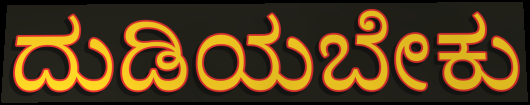
ದುಡಿಯಬೇಕು